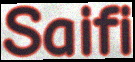
Saifi